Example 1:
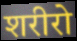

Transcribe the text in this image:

शरीरो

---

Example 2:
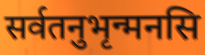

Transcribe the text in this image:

सर्वतनुभृन्मनसि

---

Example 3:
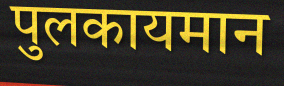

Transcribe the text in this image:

पुलकायमान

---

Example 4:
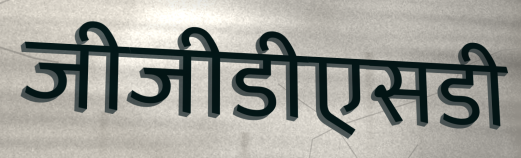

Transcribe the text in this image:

जीजीडीएसडी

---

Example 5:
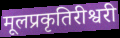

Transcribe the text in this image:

मूलप्रकृतिरीश्वरी